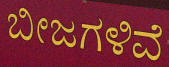
ಬೀಜಗಳಿವೆ